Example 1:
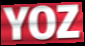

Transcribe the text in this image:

YOZ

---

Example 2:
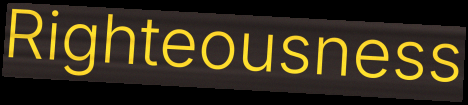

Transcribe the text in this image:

Righteousness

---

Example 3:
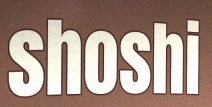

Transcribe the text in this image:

shoshi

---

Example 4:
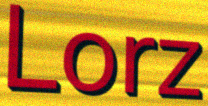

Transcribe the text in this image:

Lorz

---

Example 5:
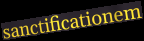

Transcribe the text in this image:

sanctificationem